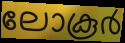
ലോകൂർ